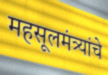
महसूलमंत्र्यांचे